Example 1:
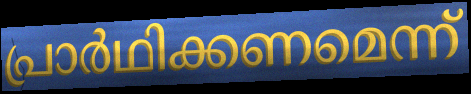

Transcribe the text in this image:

പ്രാർഥിക്കണമെന്ന്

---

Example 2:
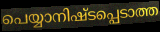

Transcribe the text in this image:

പെയ്യാനിഷ്ടപ്പെടാത്ത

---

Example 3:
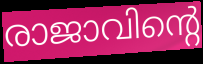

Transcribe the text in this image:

രാജാവിന്റെ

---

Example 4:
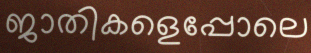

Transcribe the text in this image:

ജാതികളെപ്പോലെ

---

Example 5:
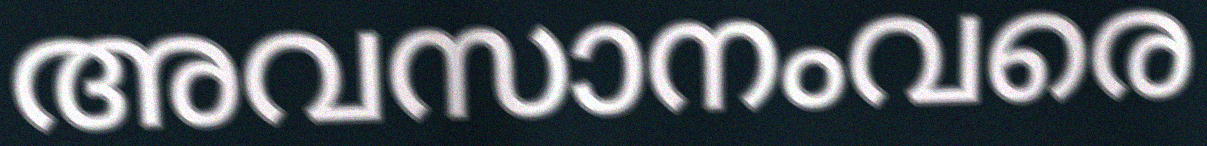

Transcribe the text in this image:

അവസാനംവരെ